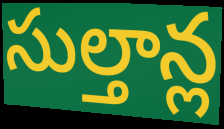
సుల్తాన్ల